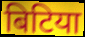
बिटिया